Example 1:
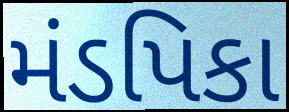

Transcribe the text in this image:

મંડપિકા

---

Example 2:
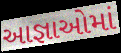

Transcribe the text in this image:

આજ્ઞાઓમાં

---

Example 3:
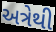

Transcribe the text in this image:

અત્રેથી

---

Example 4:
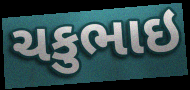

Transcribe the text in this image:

ચકુભાઇ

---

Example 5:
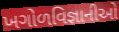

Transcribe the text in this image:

ખગોળવિજ્ઞાનીઓ